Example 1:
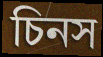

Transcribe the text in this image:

চিনস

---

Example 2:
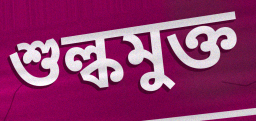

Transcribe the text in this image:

শুল্কমুক্ত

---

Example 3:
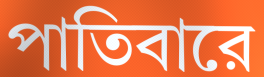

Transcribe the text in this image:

পাতিবারে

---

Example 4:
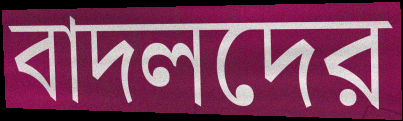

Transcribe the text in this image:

বাদলদের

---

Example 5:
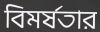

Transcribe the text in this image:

বিমর্ষতার